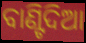
ବାଣ୍ଟିଦିଆ